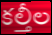
కల్తీల